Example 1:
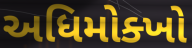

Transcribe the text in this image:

અધિમોક્ખો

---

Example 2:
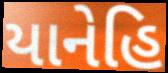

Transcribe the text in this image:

યાનેહિ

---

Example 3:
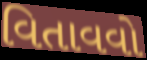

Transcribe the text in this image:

વિતાવવો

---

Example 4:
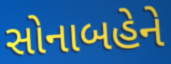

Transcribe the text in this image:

સોનાબહેને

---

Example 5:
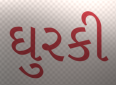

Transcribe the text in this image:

ઘુરકી